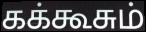
கக்கூசும்